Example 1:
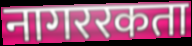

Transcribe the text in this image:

नागररकता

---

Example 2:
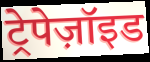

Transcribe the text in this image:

ट्रेपेज़ॉइड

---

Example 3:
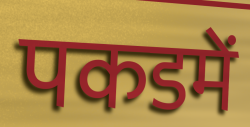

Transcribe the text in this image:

पकडमें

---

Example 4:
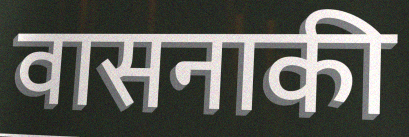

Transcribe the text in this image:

वासनाकी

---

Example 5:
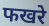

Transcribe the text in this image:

फखरे